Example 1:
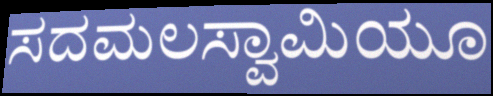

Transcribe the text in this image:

ಸದಮಲಸ್ವಾಮಿಯೂ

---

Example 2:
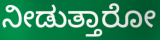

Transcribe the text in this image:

ನೀಡುತ್ತಾರೋ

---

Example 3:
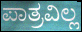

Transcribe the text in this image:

ಪಾತ್ರವಿಲ್ಲ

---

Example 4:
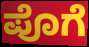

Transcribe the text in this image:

ಪೊಗೆ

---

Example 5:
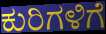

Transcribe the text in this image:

ಕುರಿಗಳಿಗೆ